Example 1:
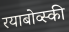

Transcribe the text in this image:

रयाबोव्स्की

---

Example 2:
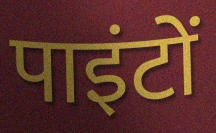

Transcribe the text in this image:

पाइंटों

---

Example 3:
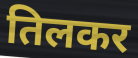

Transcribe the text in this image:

तिलकर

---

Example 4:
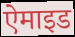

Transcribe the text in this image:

ऐमाइड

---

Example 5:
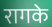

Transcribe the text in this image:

रागके